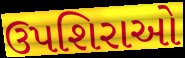
ઉપશિરાઓ